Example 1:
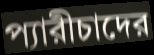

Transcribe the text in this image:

প্যারীচাদের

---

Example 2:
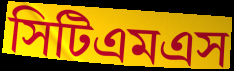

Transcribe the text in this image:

সিটিএমএস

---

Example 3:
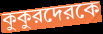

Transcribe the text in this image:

কুকুরদেরকে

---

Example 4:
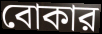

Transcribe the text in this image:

বোকার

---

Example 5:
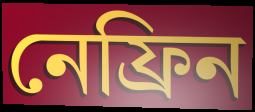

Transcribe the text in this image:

নেফ্রিন